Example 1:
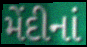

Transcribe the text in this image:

મેંદીનાં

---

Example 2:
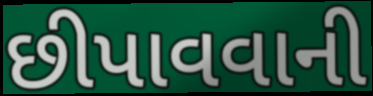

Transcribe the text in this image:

છીપાવવાની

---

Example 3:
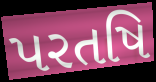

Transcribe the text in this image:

પરતષિ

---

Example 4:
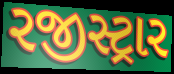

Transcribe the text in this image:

રજીસ્ટ્રાર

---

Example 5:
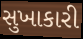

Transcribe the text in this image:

સુખાકારી